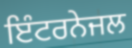
ਇੰਟਰਨੇਜਲ